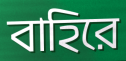
বাহিরে